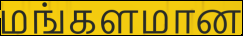
மங்களமான